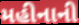
મહીનાની